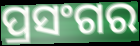
ପ୍ରସଂଗର